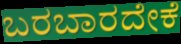
ಬರಬಾರದೇಕೆ